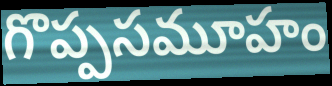
గొప్పసమూహం